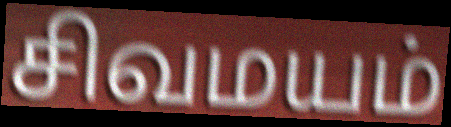
சிவமயம்